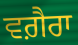
ਵਗ਼ੈਰਾ